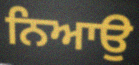
ਨਿਆਉ